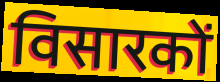
विसारकों